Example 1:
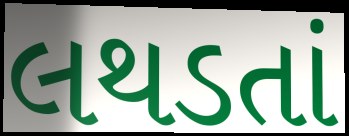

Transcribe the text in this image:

લથડતાં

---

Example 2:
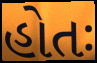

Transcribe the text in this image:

હોતઃ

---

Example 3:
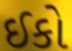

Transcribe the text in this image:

ઈકો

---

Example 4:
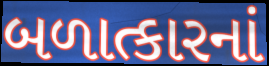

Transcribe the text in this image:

બળાત્કારનાં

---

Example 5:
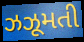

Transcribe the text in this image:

ઝઝૂમતી